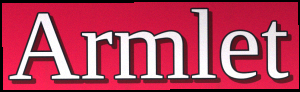
Armlet